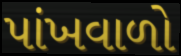
પાંખવાળો